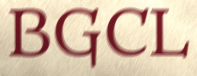
BGCL